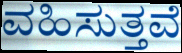
ವಹಿಸುತ್ತವೆ